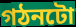
গঠনটো